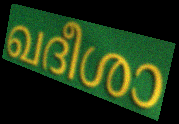
ഖദീശാ